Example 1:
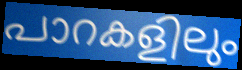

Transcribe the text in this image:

പാറകളിലും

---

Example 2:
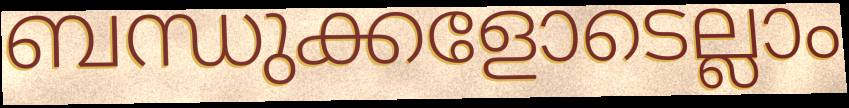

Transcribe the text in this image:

ബന്ധുക്കളോടെല്ലാം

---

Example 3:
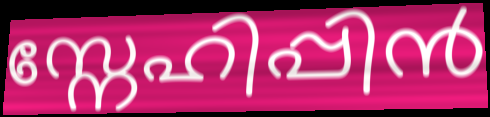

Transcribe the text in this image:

സ്നേഹിപ്പിൻ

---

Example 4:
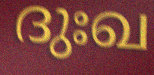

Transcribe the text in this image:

ദുഃഖ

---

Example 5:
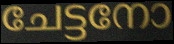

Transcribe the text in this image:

ചേട്ടനോ